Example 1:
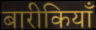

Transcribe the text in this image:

बारीकियाँ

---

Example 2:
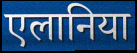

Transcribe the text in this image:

एलानिया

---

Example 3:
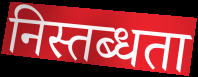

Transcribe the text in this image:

निस्तब्धता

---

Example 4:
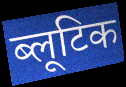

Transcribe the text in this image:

ब्लूटिक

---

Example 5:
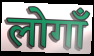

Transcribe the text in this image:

लोगाँ